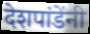
देशपांडेंनी